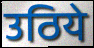
उठिये